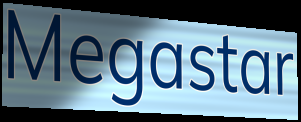
Megastar